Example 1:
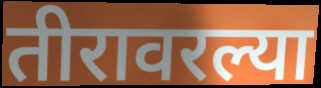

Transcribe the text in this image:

तीरावरल्या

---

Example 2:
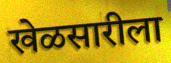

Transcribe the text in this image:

खेळसारीला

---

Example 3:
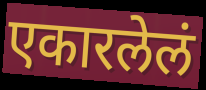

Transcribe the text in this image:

एकारलेलं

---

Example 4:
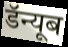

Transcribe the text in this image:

डॅन्यूब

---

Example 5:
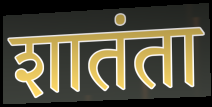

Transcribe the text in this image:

शातंता